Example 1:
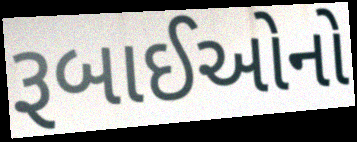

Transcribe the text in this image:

રૂબાઈઓનો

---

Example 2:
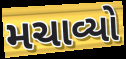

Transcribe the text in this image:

મચાવ્યો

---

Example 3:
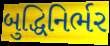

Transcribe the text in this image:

બુદ્ધિનિર્ભર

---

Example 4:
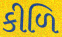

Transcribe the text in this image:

કીળિ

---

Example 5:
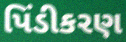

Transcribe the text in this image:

પિંડીકરણ